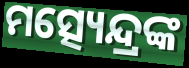
ମତ୍ସ୍ୟେନ୍ଦ୍ରଙ୍କ